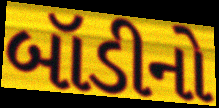
બૉડીનો